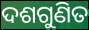
ଦଶଗୁଣିତ